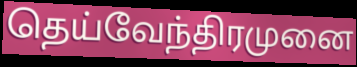
தெய்வேந்திரமுனை